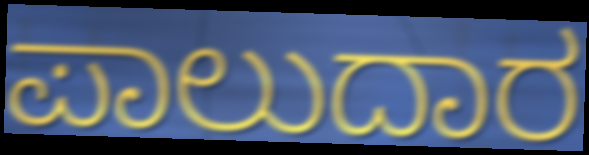
ಪಾಲುದಾರ